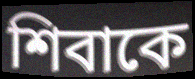
শিবাকে